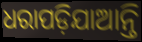
ଧରାପଡ଼ିଯାଆନ୍ତି